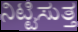
ನಿಟ್ಟಿಸುತ್ತ